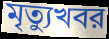
মৃত্যুখবর